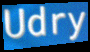
Udry